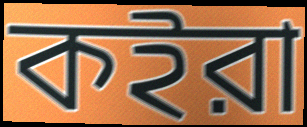
কইরা